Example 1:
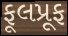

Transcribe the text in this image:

ફૂલપ્રૂફ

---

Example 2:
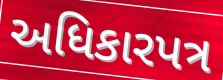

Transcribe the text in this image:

અધિકારપત્ર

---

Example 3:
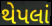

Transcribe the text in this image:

થેપલાં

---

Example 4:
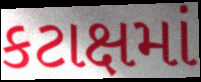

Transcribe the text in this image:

કટાક્ષમાં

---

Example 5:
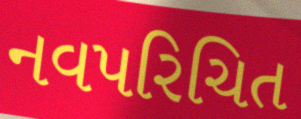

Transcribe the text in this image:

નવપરિચિત